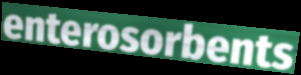
enterosorbents